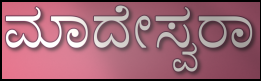
ಮಾದೇಸ್ವರಾ